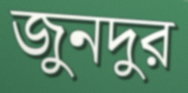
জুনদুর